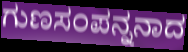
ಗುಣಸಂಪನ್ನನಾದ